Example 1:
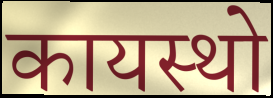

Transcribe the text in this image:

कायस्थो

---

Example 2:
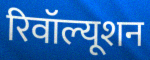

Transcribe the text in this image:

रिवॉल्यूशन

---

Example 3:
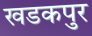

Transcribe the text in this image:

खडकपुर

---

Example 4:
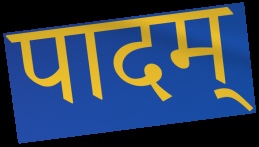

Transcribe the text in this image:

पादम्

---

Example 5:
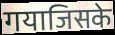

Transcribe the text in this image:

गयाजिसके